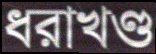
ধরাখণ্ড